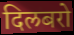
दिलबरो